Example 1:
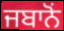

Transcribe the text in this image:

ਜਬਾਨੋਂ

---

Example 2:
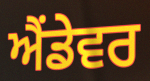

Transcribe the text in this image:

ਐਂਡੇਵਰ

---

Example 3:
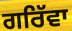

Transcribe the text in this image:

ਗਰਿੱਵਾ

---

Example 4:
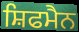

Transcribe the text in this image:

ਸ਼ਿਫਮੈਨ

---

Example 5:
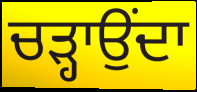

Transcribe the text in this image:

ਚੜ੍ਹਾਉਂਦਾ